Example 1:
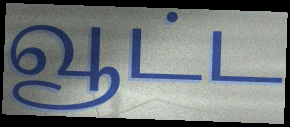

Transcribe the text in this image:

வூட்ட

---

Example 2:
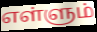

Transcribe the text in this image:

எள்ளும்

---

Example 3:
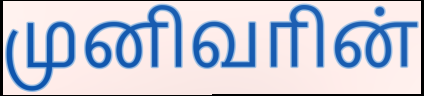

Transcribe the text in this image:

முனிவரின்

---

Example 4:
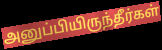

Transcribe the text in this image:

அனுப்பியிருந்தீர்கள்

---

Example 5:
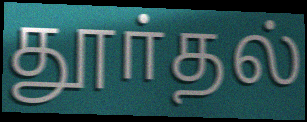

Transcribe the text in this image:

தூர்தல்